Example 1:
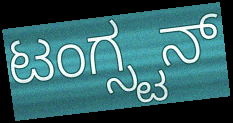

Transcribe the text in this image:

ಟಂಗ್ಸ್ಟನ್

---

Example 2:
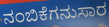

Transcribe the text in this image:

ನಂಬಿಕೆಗನುಸಾರ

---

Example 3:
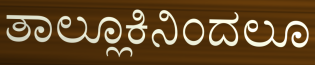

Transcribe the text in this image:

ತಾಲ್ಲೂಕಿನಿಂದಲೂ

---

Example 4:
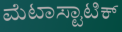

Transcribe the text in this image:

ಮೆಟಾಸ್ಟಾಟಿಕ್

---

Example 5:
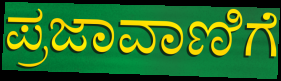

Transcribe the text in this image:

ಪ್ರಜಾವಾಣಿಗೆ